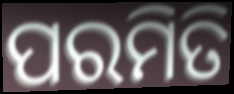
ପରମିତି